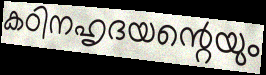
കഠിനഹൃദയന്റെയും